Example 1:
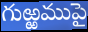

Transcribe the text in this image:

గుఱ్ఱముపై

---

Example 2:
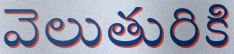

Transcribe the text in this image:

వెలుతురికి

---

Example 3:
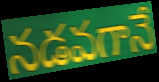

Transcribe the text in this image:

నడవగానే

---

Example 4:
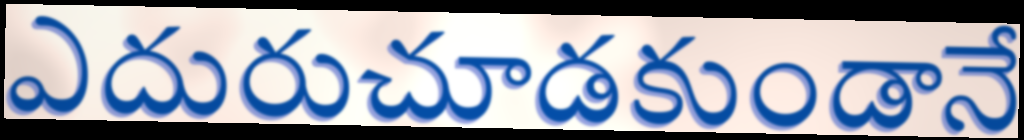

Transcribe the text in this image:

ఎదురుచూడకుండానే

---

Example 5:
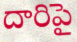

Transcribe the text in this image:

దారిపై